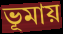
ভূমায়